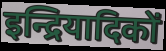
इन्द्रियादिकों